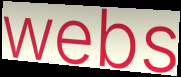
webs